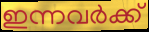
ഇന്നവർക്ക്